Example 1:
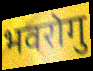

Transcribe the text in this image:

भवरोगु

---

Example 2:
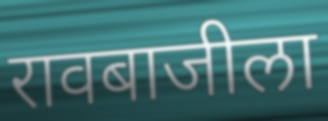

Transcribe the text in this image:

रावबाजीला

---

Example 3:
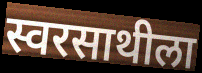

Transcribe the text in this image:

स्वरसाथीला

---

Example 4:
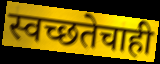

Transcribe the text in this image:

स्वच्छतेचाही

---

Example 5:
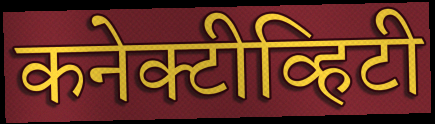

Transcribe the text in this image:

कनेक्टीव्हिटी